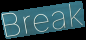
Break